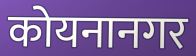
कोयनानगर